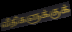
வீதிகளுக்குக்